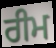
ਰੀਮ